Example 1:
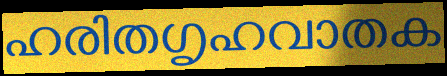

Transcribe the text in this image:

ഹരിതഗൃഹവാതക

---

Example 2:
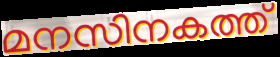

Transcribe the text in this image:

മനസിനകത്ത്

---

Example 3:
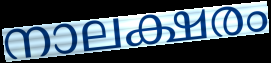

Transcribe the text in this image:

നാലക്ഷരം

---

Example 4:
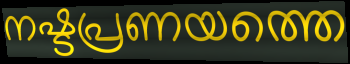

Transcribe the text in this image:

നഷ്ടപ്രണയത്തെ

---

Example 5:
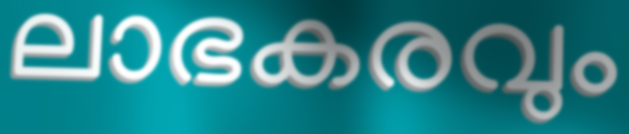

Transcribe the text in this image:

ലാഭകരവും